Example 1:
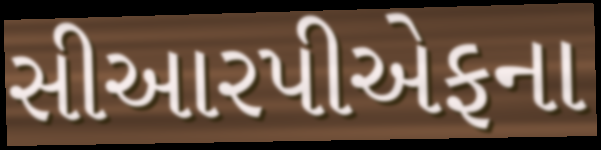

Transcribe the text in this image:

સીઆરપીએફના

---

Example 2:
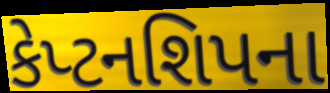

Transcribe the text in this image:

કેપ્ટનશિપના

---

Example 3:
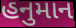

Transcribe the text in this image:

હનુમાન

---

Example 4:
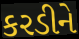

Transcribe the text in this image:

કરડીને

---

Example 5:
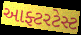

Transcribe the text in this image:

આફ્ટરટેસ્ટ